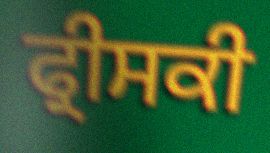
ਫ੍ਰੀਸਕੀ